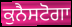
ਕੁਨੈਸਟੋਗਾ